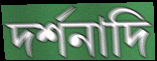
দর্শনাদি